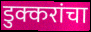
डुक्करांचा